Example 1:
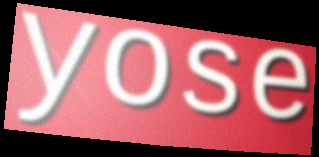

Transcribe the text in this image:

yose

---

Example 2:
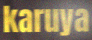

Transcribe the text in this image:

karuya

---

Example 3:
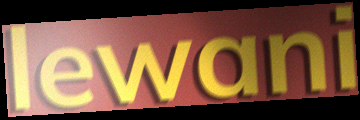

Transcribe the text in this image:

lewani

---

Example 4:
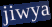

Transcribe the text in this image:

jiwya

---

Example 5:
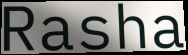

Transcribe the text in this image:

Rasha